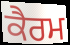
ਕੈਰਮ